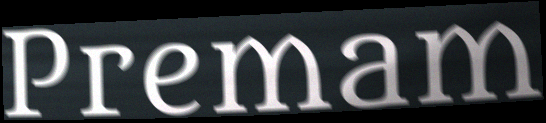
Premam